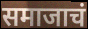
समाजाचं